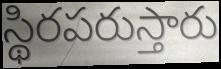
స్థిరపరుస్తారు